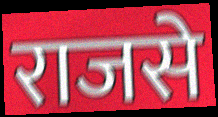
राजसे